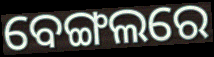
ବେଙ୍ଗଲରେ